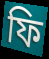
ফি